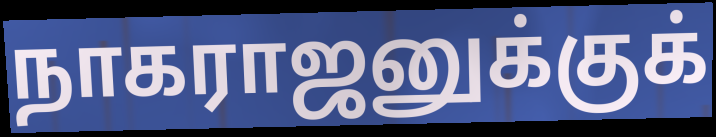
நாகராஜனுக்குக்